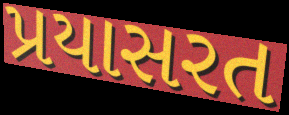
પ્રયાસરત